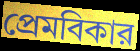
প্রেমবিকার